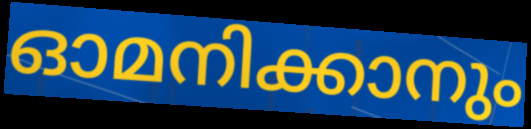
ഓമനിക്കാനും